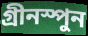
গ্রীনস্পুন